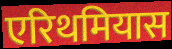
एरिथमियास